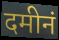
दमीनं